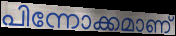
പിന്നോക്കമാണ്